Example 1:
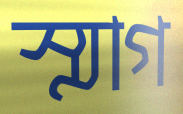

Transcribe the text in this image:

স্মাগ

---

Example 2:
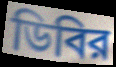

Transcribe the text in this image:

ডিবির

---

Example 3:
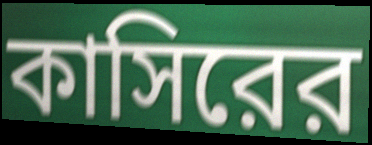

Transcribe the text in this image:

কাসিরের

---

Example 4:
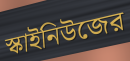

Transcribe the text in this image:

স্কাইনিউজের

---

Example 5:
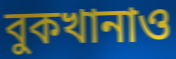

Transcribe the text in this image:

বুকখানাও